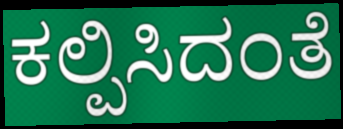
ಕಲ್ಪಿಸಿದಂತೆ